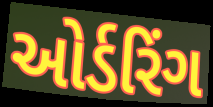
ઓર્ડરિંગ